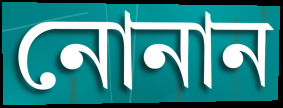
নোনান